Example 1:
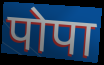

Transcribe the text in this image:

पोपा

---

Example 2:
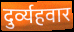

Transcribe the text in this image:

दुर्व्यहवार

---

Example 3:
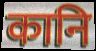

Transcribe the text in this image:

कानि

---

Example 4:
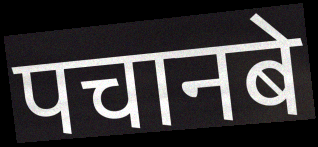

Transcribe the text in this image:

पचानबे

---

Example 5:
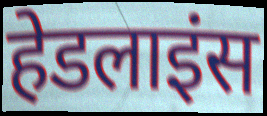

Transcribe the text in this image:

हेडलाइंस